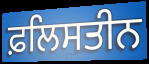
ਫ਼ਲਿਸਤੀਨ